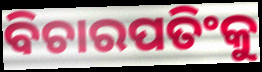
ବିଚାରପତିଂକୁ